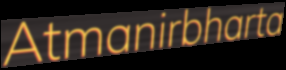
Atmanirbharta